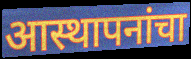
आस्थापनांचा